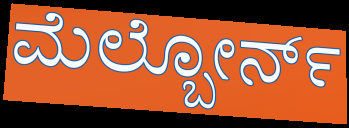
ಮೆಲ್ಬೋರ್ನ್